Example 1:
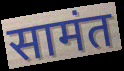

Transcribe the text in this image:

सामंत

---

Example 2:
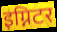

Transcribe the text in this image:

इग्निटर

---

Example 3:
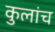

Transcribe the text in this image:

कुलांच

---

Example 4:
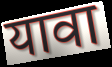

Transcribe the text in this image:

यावा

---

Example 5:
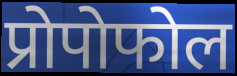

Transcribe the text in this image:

प्रोपोफोल